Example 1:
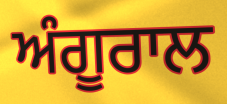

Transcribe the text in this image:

ਅੰਗੂਰਾਲ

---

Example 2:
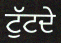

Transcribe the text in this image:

ਟੁੱਟਦੇ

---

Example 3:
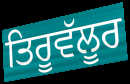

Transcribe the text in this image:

ਤਿਰੂਵੱਲੂਰ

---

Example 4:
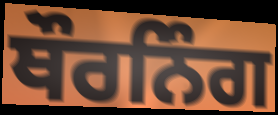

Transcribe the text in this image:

ਥੌਰਨਿੰਗ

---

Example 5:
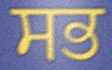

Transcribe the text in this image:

ਸਭ